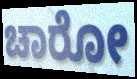
ಚಾರೋ